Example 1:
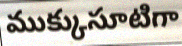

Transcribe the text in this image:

ముక్కుసూటిగా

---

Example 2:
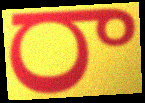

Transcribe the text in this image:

రా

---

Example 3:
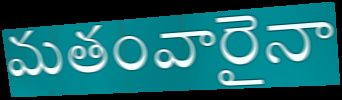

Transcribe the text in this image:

మతంవారైనా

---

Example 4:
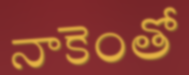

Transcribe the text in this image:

నాకెంతో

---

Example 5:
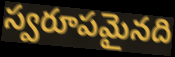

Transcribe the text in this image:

స్వరూపమైనది